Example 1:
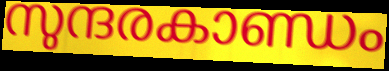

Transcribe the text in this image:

സുന്ദരകാണ്ഡം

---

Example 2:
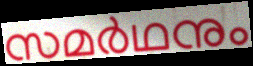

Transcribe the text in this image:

സമർഥനും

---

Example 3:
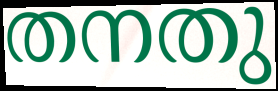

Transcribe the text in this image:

തനതു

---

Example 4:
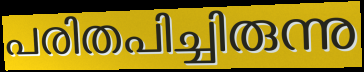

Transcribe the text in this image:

പരിതപിച്ചിരുന്നു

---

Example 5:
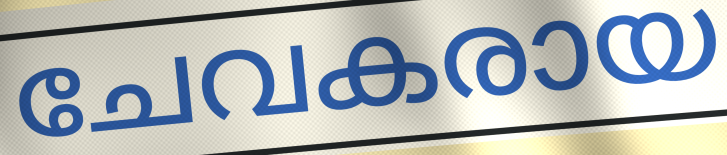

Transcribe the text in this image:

ചേവകരായ